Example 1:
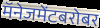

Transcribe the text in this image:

मॅनेजमेंटबरोबर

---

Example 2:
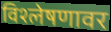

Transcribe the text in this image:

विश्लेषणावर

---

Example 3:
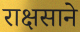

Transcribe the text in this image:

राक्षसाने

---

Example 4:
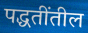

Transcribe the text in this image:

पद्धतींतील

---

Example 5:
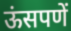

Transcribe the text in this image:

ऊंसपणें